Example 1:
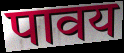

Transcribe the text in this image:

पावय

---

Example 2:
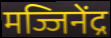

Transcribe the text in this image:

मज्जिनेंद्र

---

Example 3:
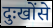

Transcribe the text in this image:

दुःखोंसे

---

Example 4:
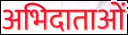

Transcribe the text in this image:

अभिदाताओं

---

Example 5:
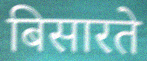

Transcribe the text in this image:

बिसारते